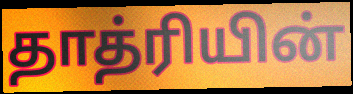
தாத்ரியின்